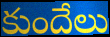
కుందేలు